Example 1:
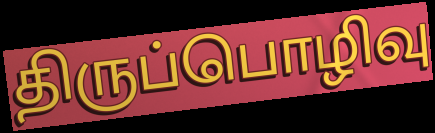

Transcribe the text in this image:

திருப்பொழிவு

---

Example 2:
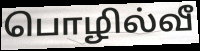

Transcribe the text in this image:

பொழில்வீ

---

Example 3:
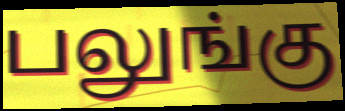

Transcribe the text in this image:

பலுங்கு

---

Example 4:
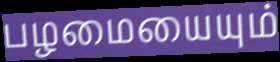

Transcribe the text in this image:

பழமையையும்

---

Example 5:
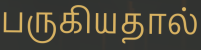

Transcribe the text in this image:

பருகியதால்